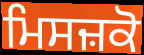
ਮਿਸਜ਼ਕੋ